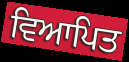
ਵਿਆਪਿਤ